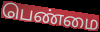
பெண்மை